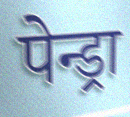
पेन्ड्रा